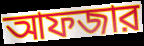
আফজার